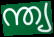
ന്ത്യ